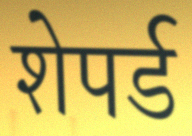
शेपर्ड